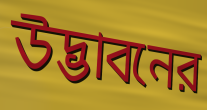
উদ্ভাবনের